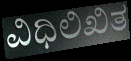
ವಿಧಿಲಿಖಿತ